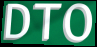
DTO